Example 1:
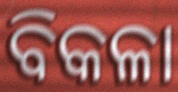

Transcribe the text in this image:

ବିକଳା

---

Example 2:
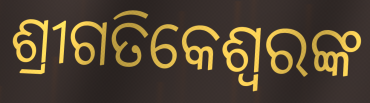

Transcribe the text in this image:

ଶ୍ରୀଗତିକେଶ୍ବରଙ୍କ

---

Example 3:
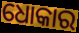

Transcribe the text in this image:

ଧୋକାର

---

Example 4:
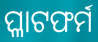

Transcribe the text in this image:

ପ୍ଳାଟଫର୍ମ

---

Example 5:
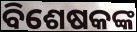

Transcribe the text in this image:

ବିଶେଷକଙ୍କ